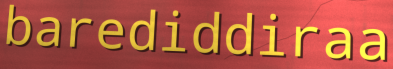
barediddiraa